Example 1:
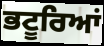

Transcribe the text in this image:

ਭਟੂਰਿਆਂ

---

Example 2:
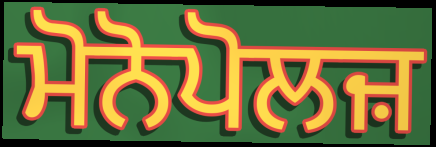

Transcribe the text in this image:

ਮੋਨੋਪੋਲਜ਼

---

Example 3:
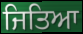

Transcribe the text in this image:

ਜਿਤਿਆ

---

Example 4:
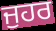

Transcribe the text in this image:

ਜੁਹਰ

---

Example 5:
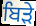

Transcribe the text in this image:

ਬਿੜੇ